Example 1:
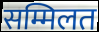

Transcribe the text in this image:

सम्मिलत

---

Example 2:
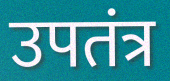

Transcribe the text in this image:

उपतंत्र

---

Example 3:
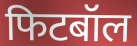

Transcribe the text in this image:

फिटबॉल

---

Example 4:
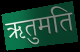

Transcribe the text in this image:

ऋतुमति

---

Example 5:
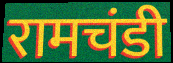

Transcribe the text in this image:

रामचंडी